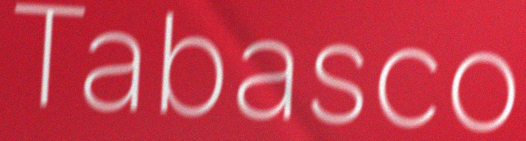
Tabasco